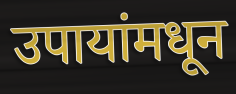
उपायांमधून